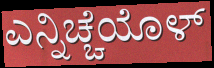
ಎನ್ನಿಚ್ಚೆಯೊಳ್